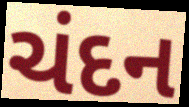
ચંદન